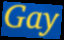
Gay